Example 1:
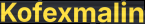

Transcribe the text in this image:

Kofexmalin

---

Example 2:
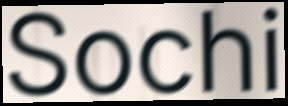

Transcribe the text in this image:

Sochi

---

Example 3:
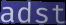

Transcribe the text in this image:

adst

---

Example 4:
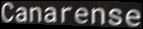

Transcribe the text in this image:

Canarense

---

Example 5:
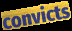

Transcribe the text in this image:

convicts